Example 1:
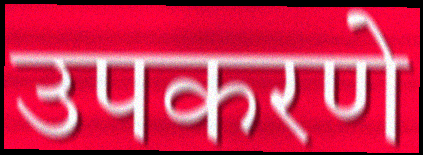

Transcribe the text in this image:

उपकरणे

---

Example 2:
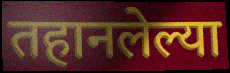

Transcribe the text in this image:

तहानलेल्या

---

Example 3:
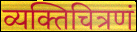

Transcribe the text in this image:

व्यक्तिचित्रणं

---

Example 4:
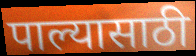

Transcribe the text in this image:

पाल्यासाठी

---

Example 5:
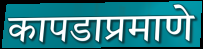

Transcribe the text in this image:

कापडाप्रमाणे